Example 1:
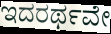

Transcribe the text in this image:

ಇದರರ್ಥವೇ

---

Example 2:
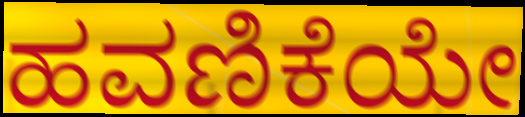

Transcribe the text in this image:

ಹವಣಿಕೆಯೇ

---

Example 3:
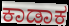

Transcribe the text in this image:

ಕಾಡಾಕ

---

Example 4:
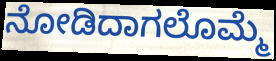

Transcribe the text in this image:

ನೋಡಿದಾಗಲೊಮ್ಮೆ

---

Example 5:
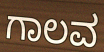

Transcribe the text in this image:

ಗಾಲವ